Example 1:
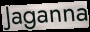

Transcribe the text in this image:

Jaganna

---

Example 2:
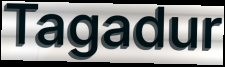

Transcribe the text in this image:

Tagadur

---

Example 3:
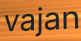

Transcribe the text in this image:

vajan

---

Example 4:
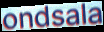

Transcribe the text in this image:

ondsala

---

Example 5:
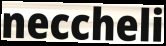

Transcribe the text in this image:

neccheli